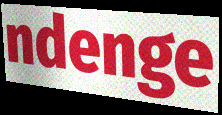
ndenge